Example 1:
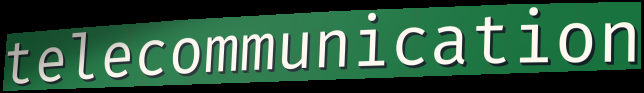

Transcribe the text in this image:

telecommunication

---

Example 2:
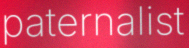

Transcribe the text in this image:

paternalist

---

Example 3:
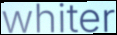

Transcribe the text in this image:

whiter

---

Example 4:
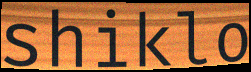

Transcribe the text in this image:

shiklo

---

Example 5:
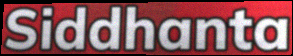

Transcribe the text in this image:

Siddhanta